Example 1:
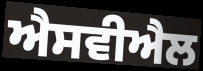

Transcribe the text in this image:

ਐਸਵੀਐਲ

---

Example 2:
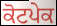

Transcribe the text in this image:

ਕੋਟਪੇਕ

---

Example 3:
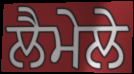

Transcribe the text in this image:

ਲੈਮੇਲੇ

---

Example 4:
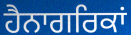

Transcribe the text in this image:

ਹੈਨਾਗਰਿਕਾਂ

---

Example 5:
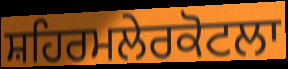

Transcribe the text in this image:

ਸ਼ਹਿਰਮਲੇਰਕੋਟਲਾ